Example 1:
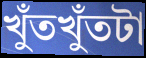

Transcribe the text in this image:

খুঁতখুঁতটা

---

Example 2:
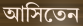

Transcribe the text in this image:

আসিতেন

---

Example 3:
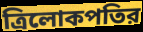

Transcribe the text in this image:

ত্রিলোকপতির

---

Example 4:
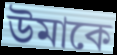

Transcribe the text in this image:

উমাকে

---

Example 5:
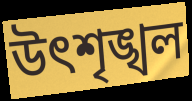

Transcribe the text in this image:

উৎশৃঙ্খল